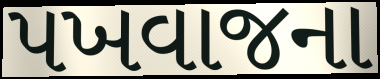
પખવાજના